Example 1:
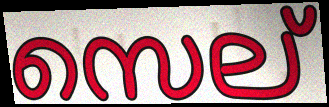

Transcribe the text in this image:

സെല്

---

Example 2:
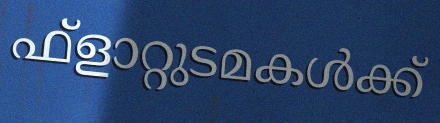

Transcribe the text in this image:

ഫ്ളാറ്റുടമകൾക്ക്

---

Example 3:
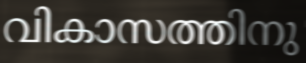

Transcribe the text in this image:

വികാസത്തിനു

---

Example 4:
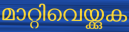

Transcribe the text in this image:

മാറ്റിവെയ്ക്കുക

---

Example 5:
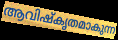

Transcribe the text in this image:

ആവിഷ്കൃതമാകുന്ന